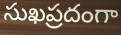
సుఖప్రదంగా